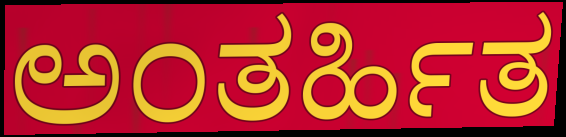
ಅಂತರ್ಹಿತ